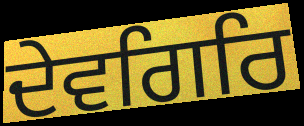
ਦੇਵਗਿਰਿ